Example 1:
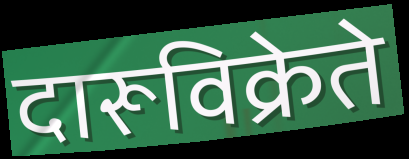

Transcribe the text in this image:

दारूविक्रेते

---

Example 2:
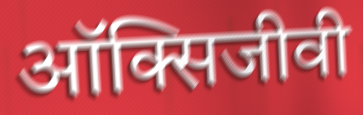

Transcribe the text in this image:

ऑक्सिजीवी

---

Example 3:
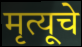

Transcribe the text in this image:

मृत्यूचे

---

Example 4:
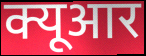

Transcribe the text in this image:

क्यूआर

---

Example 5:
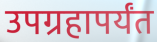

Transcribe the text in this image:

उपग्रहापर्यंत